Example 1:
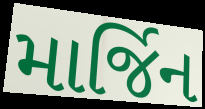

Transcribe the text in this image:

માર્જિન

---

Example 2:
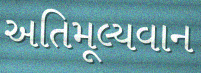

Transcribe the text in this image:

અતિમૂલ્યવાન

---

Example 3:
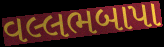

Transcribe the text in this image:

વલ્લભબાપા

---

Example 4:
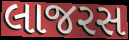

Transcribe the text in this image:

લાજરસ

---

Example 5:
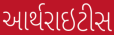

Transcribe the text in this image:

આર્થરાઇટીસ